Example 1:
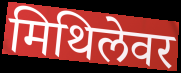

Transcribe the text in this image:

मिथिलेवर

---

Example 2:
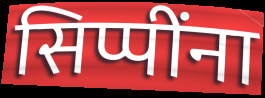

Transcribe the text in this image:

सिप्पींना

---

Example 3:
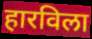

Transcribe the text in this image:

हारविला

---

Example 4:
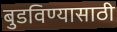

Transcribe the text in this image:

बुडविण्यासाठी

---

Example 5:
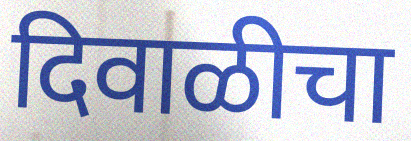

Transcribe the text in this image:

दिवाळीचा